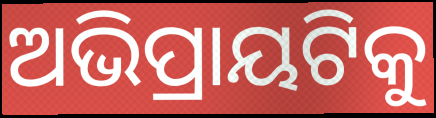
ଅଭିପ୍ରାୟଟିକୁ